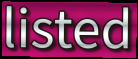
listed